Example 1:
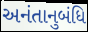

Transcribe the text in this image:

અનંતાનુબંધિ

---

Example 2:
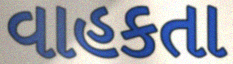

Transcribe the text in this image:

વાહકતા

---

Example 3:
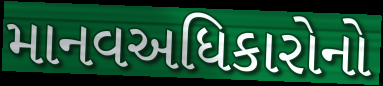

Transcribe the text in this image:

માનવઅધિકારોનો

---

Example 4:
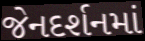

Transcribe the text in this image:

જેનદર્શનમાં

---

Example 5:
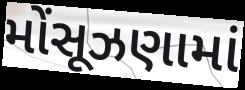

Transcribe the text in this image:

મોંસૂઝણામાં